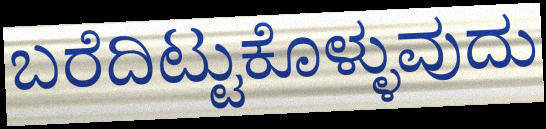
ಬರೆದಿಟ್ಟುಕೊಳ್ಳುವುದು